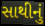
સાથીનું